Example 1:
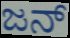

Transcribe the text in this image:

ಜನ್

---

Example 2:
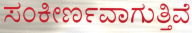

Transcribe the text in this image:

ಸಂಕೀರ್ಣವಾಗುತ್ತಿವೆ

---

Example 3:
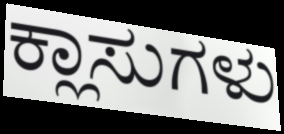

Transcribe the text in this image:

ಕ್ಲಾಸುಗಳು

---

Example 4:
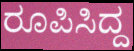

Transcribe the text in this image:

ರೂಪಿಸಿದ್ದ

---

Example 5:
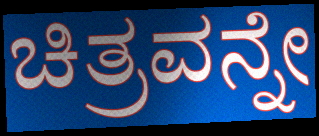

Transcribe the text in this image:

ಚಿತ್ರವನ್ನೇ